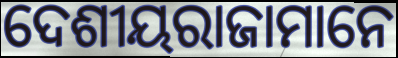
ଦେଶୀୟରାଜାମାନେ